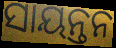
ସାୟନ୍ତନ